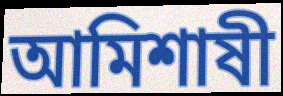
আমিশাষী